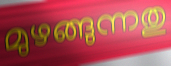
മുഴങ്ങുന്നതു